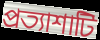
প্রত্যাশাটি